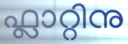
ഫ്ലാറ്റിനു